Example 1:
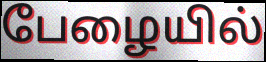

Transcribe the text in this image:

பேழையில்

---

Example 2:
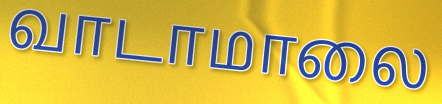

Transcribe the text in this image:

வாடாமாலை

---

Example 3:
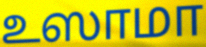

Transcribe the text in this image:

உஸாமா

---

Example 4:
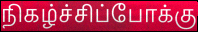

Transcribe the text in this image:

நிகழ்ச்சிப்போக்கு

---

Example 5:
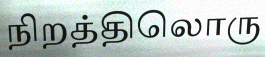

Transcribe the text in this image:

நிறத்திலொரு